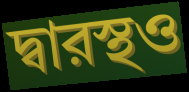
দ্বারস্থও